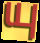
யு